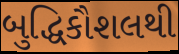
બુદ્ધિકૌશલથી